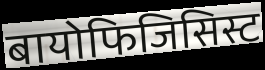
बायोफिजिसिस्ट